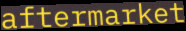
aftermarket